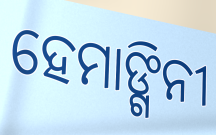
ହେମାଙ୍ଗିନୀ